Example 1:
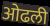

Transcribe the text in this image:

ओढली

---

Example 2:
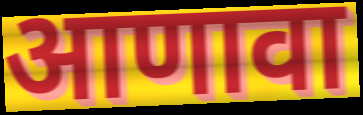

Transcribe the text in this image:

आणावा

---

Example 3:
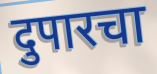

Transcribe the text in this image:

दुपारचा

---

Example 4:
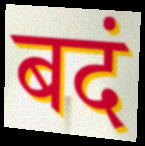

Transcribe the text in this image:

बदं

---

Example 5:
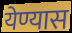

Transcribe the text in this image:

येण्यास